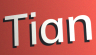
Tian